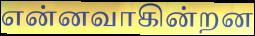
என்னவாகின்றன